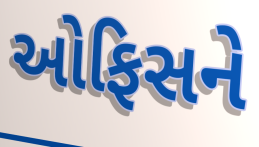
ઓફિસને